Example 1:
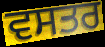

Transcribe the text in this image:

ਵਸਤਰ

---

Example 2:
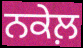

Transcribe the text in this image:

ਨਕੇਲ਼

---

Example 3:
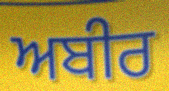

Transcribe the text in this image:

ਅਬੀਰ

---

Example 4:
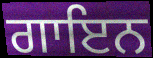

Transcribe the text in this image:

ਗਾਇਨ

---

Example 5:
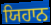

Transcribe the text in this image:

ਯਿਹਾਨ